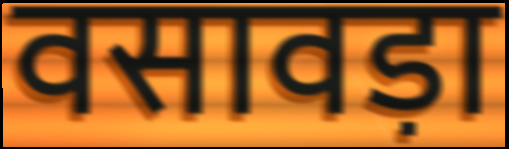
वसावड़ा